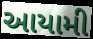
આયામી